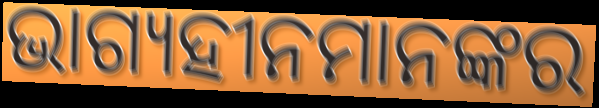
ଭାଗ୍ୟହୀନମାନଙ୍କର